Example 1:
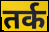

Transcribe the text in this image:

तर्क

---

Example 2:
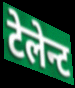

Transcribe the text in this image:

टेलेन्ट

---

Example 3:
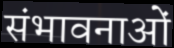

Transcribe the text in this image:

संभावनाओं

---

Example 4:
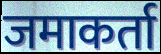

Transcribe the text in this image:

जमाकर्ता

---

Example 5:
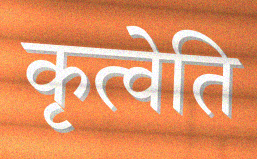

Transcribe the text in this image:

कृत्वेति